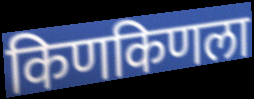
किणकिणला